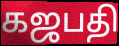
கஜபதி